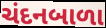
ચંદનબાળા